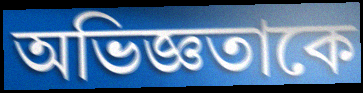
অভিজ্ঞতাকে